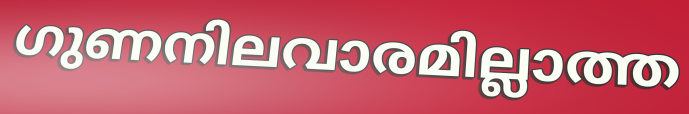
ഗുണനിലവാരമില്ലാത്ത